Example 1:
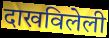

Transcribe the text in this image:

दाखविलेली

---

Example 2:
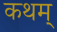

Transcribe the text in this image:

कथम्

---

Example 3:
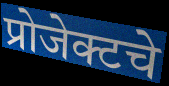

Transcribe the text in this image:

प्रोजेक्टचे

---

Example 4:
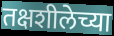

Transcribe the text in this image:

तक्षशीलेच्या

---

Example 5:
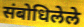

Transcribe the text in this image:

संबोधिलेले